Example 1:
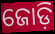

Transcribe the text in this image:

ଜୋଡ଼ି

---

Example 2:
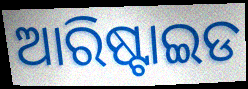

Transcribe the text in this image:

ଆରିଷ୍ଟାଇଡ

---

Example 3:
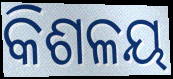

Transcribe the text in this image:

କିଶଳୟ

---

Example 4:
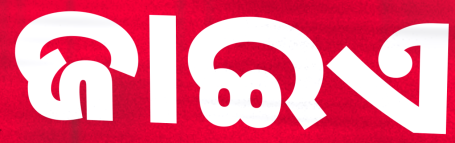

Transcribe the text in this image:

ଜାଇଏ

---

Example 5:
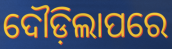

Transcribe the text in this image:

ଦୌଡ଼ିଲାପରେ